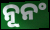
ନୂନଂ